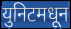
युनिटमधून